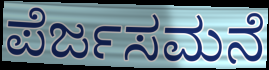
ಪೆರ್ಜಸಮನೆ